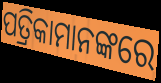
ପତ୍ରିକାମାନଙ୍କରେ